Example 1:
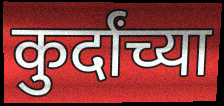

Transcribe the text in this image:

कुर्दांच्या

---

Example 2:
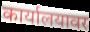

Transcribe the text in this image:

कार्यालयावर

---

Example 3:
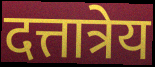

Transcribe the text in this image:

दत्तात्रेय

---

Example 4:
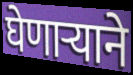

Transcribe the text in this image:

घेणाऱ्याने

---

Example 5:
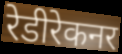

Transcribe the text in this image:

रेडीरेकनर